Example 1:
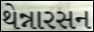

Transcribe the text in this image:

થેન્નારસન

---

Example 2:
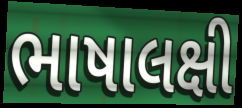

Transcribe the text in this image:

ભાષાલક્ષી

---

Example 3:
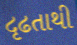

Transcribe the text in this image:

દૃઢતાથી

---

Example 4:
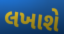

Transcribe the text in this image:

લખાશે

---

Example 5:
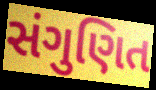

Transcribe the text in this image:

સંગુણિત